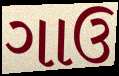
ગાઉ